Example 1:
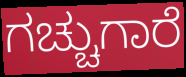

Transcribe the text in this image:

ಗಚ್ಚುಗಾರೆ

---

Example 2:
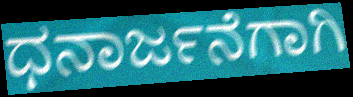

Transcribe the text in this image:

ಧನಾರ್ಜನೆಗಾಗಿ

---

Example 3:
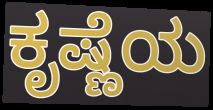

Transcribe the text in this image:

ಕೃಷ್ಣೆಯ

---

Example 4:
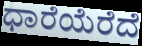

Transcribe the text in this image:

ಧಾರೆಯೆರೆದೆ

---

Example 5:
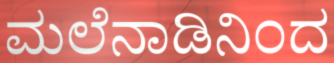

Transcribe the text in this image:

ಮಲೆನಾಡಿನಿಂದ